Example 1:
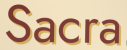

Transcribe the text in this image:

Sacra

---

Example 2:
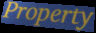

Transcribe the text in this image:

Property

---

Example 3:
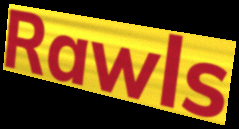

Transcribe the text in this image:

Rawls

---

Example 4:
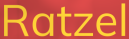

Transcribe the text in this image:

Ratzel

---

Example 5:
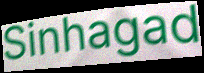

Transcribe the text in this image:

Sinhagad